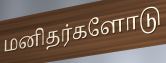
மனிதர்களோடு